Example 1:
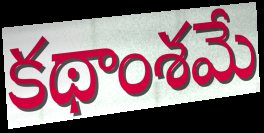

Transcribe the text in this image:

కథాంశమే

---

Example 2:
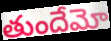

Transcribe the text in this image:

తుందేమో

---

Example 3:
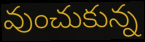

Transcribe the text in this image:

వుంచుకున్న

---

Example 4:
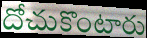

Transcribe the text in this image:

దోచుకొంటారు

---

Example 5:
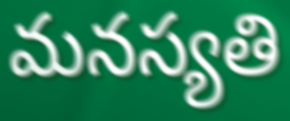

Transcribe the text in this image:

మనస్యతి